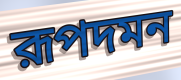
রূপদমন